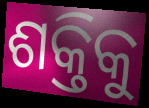
ଶକ୍ତିକୁ